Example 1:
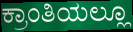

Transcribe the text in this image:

ಕ್ರಾಂತಿಯಲ್ಲೂ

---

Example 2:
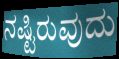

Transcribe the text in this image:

ನಷ್ಟಿರುವುದು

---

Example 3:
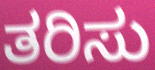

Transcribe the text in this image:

ತರಿಸು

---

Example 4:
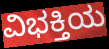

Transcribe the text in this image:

ವಿಭಕ್ತಿಯ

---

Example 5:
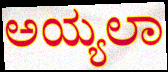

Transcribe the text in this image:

ಅಯ್ಯಲಾ